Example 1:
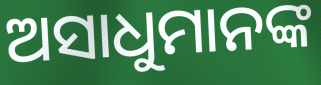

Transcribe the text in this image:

ଅସାଧୁମାନଙ୍କ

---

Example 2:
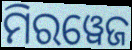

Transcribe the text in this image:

ମିରୱେଜ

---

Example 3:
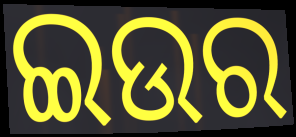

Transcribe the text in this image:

ଇଉର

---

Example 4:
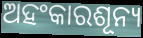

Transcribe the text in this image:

ଅହଂକାରଶୂନ୍ୟ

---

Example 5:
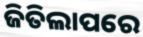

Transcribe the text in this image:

ଜିତିଲାପରେ